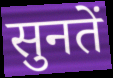
सुनतें